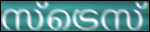
സ്ട്രെസ്